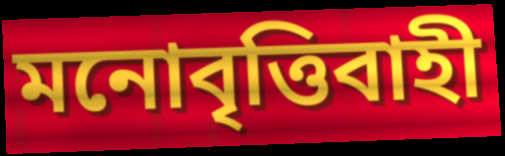
মনোবৃত্তিবাহী